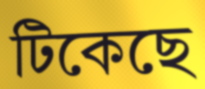
টিকেছে